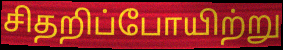
சிதறிப்போயிற்று